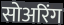
सोअरिंग